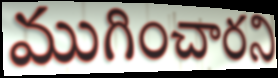
ముగించారని